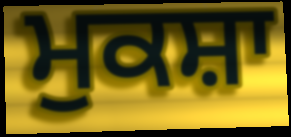
ਮੁਕਸ਼ਾ